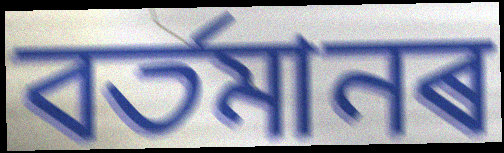
বৰ্তমানৰ